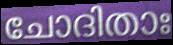
ചോദിതാഃ